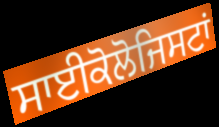
ਸਾਈਕੋਲੋਜਿਸਟਾਂ